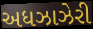
અધઝાઝેરી